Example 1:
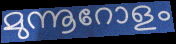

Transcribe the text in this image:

മുന്നൂറോളം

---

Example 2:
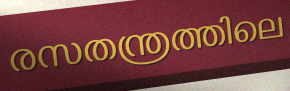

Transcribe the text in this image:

രസതന്ത്രത്തിലെ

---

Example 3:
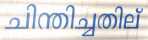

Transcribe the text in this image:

ചിന്തിച്ചതില്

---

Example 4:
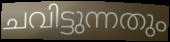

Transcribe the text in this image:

ചവിട്ടുന്നതും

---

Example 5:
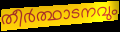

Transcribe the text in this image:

തീർത്ഥാടനവും